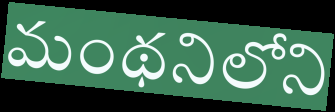
మంథనిలోని